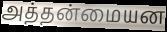
அத்தன்மையன